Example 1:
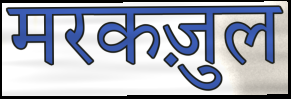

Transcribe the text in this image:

मरकज़ुल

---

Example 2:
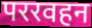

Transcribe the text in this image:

पररवहन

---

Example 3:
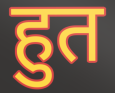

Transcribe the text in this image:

हुत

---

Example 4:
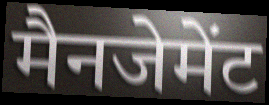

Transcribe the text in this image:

मैनजेमेंट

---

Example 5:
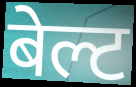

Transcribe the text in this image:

बेल्‍ट